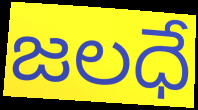
జలధే